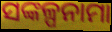
ସଙ୍କଳ୍ପନାମା